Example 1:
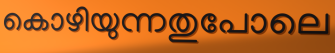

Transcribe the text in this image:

കൊഴിയുന്നതുപോലെ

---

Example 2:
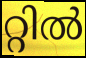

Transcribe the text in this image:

റ്റിൽ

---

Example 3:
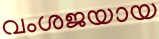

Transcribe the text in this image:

വംശജയായ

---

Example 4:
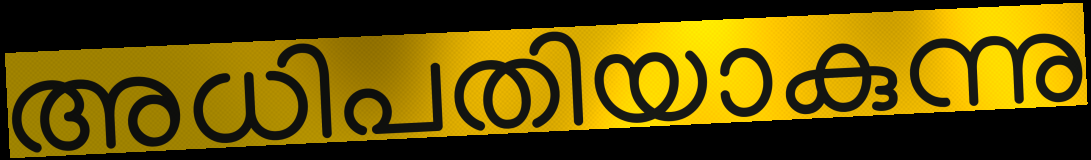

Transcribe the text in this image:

അധിപതിയാകുന്നു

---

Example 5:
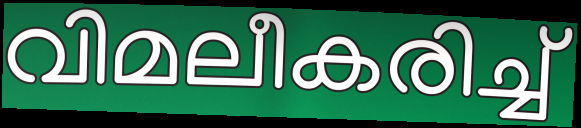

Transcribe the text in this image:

വിമലീകരിച്ച്